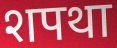
शपथा